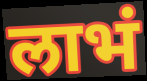
लाभं